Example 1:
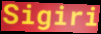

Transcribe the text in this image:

Sigiri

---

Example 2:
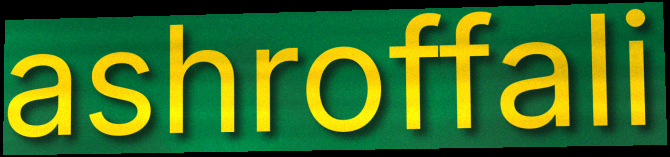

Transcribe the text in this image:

ashroffali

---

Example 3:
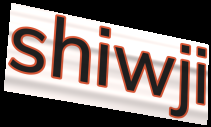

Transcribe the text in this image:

shiwji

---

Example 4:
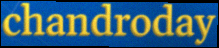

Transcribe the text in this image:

chandroday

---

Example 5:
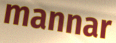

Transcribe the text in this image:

mannar